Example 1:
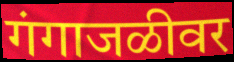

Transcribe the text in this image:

गंगाजळीवर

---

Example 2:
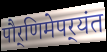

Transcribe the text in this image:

पौर्णिमेपर्यंत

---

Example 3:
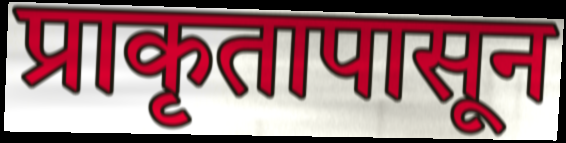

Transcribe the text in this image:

प्राकृतापासून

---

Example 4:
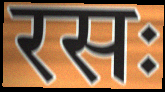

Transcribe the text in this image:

रसः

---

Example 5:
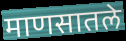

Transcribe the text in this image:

माणसातले